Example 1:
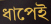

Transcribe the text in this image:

ধাপেই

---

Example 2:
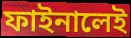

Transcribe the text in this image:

ফাইনালেই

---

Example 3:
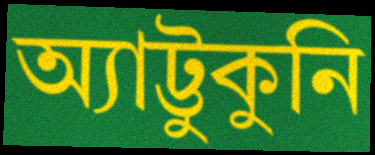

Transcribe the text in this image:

অ্যাট্টুকুনি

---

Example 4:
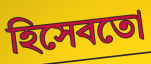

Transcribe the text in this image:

হিসেবতো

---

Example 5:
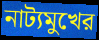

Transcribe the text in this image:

নাট্যমুখের